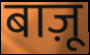
बाज़ू